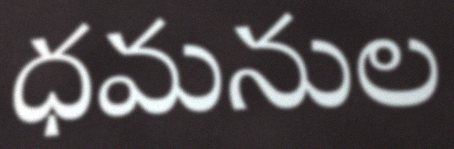
ధమనుల